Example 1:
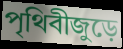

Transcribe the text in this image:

পৃথিবীজুড়ে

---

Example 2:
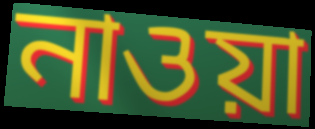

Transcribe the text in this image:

নাওয়া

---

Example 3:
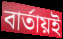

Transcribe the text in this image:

বার্তায়ই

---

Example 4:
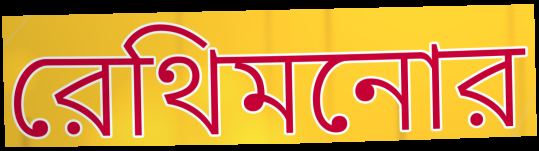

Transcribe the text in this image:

রেথিমনোর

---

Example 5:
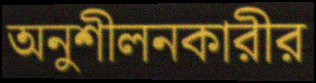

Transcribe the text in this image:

অনুশীলনকারীর